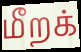
மீறக்